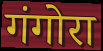
गंगोरा